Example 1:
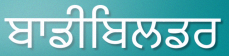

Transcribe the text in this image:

ਬਾਡੀਬਿਲਡਰ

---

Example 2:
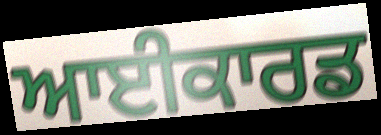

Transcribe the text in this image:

ਆਈਕਾਰਡ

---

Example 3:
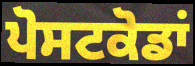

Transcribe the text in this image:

ਪੋਸਟਕੋਡਾਂ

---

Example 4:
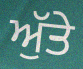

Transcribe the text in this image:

ਅੁੱਤੇ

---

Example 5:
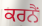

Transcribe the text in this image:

ਕਰਨੈਂ